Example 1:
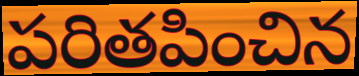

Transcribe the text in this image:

పరితపించిన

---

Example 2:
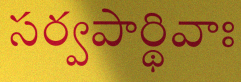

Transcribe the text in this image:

సర్వపార్థివాః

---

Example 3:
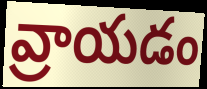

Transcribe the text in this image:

వ్రాయడం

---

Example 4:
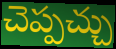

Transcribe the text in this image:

చెప్పచ్చు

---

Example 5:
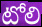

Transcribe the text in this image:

టోలి